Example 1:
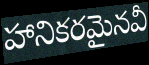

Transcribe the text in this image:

హానికరమైనవీ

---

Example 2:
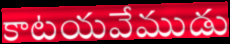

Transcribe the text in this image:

కాటయవేముడు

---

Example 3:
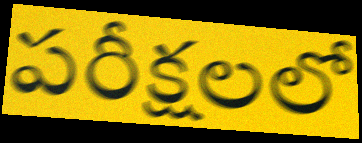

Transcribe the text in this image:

పరీక్షలలో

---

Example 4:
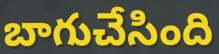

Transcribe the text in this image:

బాగుచేసింది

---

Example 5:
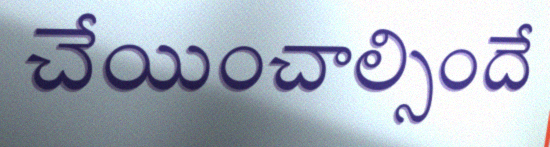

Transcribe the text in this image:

చేయించాల్సిందే